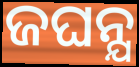
ଜଘନ୍ଯ